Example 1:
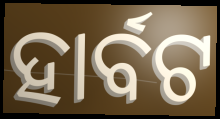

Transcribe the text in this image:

ହାର୍ବଟ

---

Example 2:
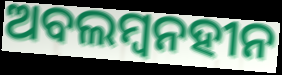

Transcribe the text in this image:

ଅବଲମ୍ବନହୀନ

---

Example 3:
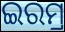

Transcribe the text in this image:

ଇରମ୍ର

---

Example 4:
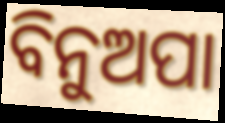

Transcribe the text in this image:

ବିନୁଅପା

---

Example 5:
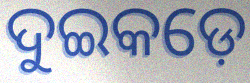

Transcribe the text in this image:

ଦୁଇକଡ଼େ